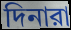
দিনারা